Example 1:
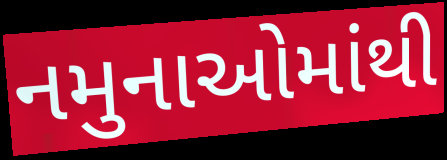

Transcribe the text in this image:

નમુનાઓમાંથી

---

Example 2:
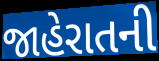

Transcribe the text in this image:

જાહેરાતની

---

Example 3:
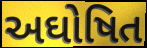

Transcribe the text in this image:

અઘોષિત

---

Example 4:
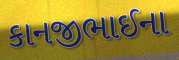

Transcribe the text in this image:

કાનજીભાઈના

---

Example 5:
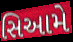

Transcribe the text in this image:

સિઆમે